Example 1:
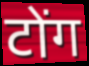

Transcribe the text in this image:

टोंग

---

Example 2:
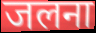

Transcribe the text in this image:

जलना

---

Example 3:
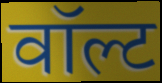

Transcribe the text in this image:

वॉल्ट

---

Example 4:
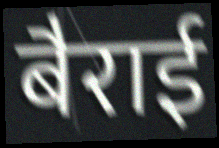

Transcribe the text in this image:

बैराई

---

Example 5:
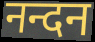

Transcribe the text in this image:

नन्‍दन